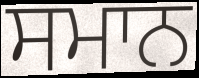
ਸਮਾਨ